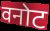
वनोट